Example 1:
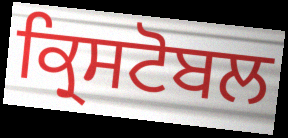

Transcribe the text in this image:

ਕ੍ਰਿਸਟੋਬਲ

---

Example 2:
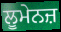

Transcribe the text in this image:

ਲੂਮੇਨਜ਼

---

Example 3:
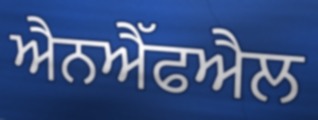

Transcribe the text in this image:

ਐਨਐੱਫਐਲ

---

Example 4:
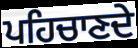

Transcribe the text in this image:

ਪਹਿਚਾਣਦੇ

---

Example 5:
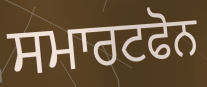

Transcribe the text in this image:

ਸਮਾਰਟਫੋਨ